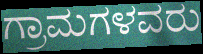
ಗ್ರಾಮಗಳವರು